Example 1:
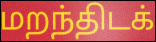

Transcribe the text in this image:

மறந்திடக்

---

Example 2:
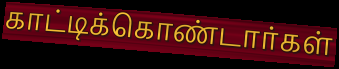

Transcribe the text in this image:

காட்டிக்கொண்டார்கள்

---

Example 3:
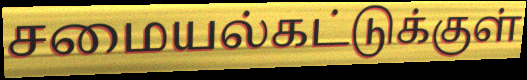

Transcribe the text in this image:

சமையல்கட்டுக்குள்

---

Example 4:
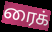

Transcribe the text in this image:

ரைக்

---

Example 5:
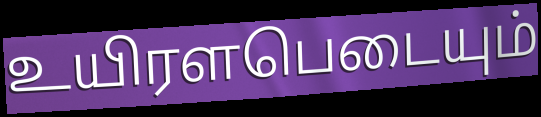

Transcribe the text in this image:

உயிரளபெடையும்